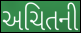
અચિતની